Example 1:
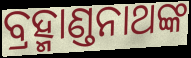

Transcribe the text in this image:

ବ୍ରହ୍ମାଣ୍ଡନାଥଙ୍କ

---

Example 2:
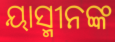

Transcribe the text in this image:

ୟାସ୍ମୀନଙ୍କ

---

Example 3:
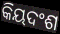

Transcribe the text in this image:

କିୟଦଂଶ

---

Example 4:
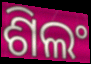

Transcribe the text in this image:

ଶିଲଂ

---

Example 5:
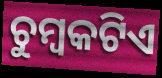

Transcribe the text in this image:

ଚୁମ୍ବକଟିଏ